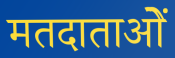
मतदाताओें